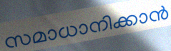
സമാധാനിക്കാൻ